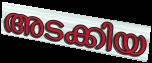
അടക്കിയ